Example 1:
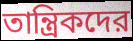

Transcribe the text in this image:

তান্ত্রিকদের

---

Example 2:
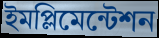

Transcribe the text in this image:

ইমপ্লিমেন্টেশন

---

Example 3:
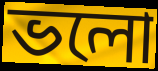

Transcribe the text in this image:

ভলো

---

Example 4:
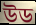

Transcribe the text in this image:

উড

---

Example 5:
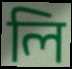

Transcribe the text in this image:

লি